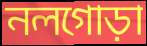
নলগোড়া